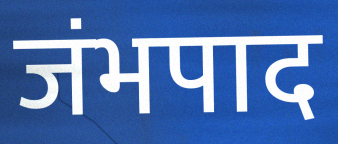
जंभपाद